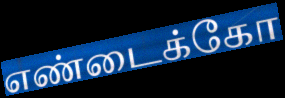
எண்டைக்கோ